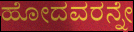
ಹೋದವರನ್ನೇ